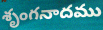
శృంగనాదము